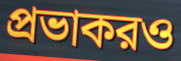
প্রভাকরও